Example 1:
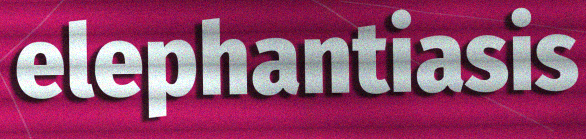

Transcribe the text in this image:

elephantiasis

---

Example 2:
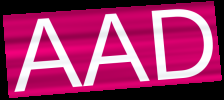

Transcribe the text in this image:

AAD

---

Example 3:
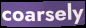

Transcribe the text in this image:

coarsely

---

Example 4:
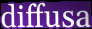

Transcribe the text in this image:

diffusa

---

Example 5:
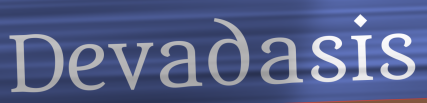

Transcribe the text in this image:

Devadasis